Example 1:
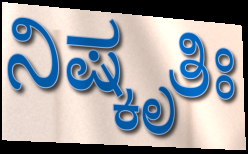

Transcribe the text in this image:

ನಿಷ್ಕೃತಿಃ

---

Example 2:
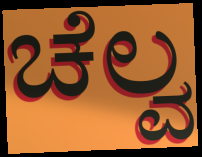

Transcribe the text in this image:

ಚೆಲ್ವ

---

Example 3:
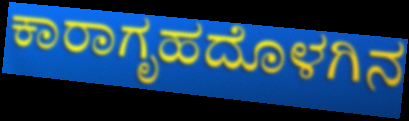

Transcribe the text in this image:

ಕಾರಾಗೃಹದೊಳಗಿನ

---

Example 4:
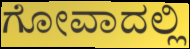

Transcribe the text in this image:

ಗೋವಾದಲ್ಲಿ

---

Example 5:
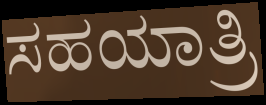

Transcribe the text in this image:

ಸಹಯಾತ್ರಿ